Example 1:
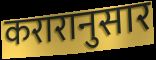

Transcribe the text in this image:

करारानुसार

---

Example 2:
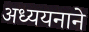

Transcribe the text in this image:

अध्ययनाने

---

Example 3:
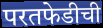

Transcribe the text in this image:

परतफेडीची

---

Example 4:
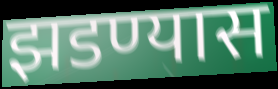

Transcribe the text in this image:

झडण्यास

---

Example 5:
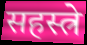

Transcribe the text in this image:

सहस्त्रे